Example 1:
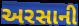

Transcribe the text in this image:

અરસાની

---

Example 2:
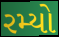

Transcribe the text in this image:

રમ્યો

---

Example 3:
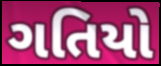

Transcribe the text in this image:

ગતિયો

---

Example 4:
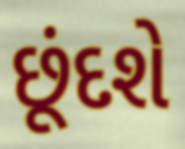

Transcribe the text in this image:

છૂંદશે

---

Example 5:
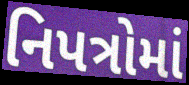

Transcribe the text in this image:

નિપત્રોમાં